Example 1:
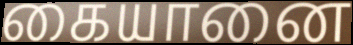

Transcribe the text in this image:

கையானை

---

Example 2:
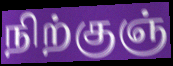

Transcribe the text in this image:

நிற்குஞ்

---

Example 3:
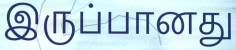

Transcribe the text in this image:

இருப்பானது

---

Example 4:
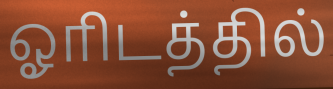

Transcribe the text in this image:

ஓரிடத்தில்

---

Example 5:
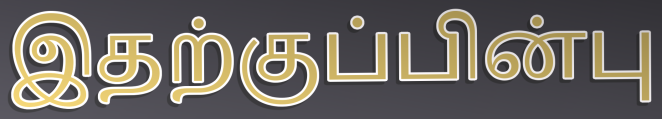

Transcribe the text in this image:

இதற்குப்பின்பு